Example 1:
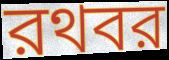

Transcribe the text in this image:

রথবর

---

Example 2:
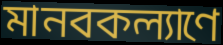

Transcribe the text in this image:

মানবকল্যাণে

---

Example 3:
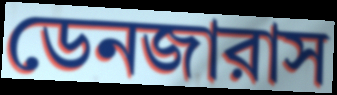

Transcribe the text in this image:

ডেনজারাস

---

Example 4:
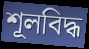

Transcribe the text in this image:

শূলবিদ্ধ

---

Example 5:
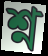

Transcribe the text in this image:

শ্ন